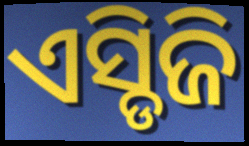
ଏସ୍ଡିଜି